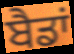
ਬੈਡਾਂ